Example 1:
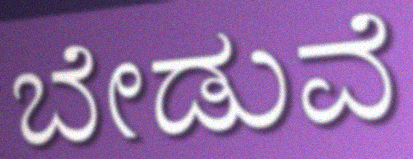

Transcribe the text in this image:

ಬೇಡುವೆ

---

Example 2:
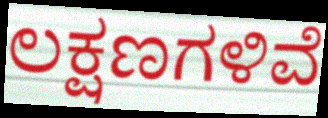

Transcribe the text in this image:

ಲಕ್ಷಣಗಳಿವೆ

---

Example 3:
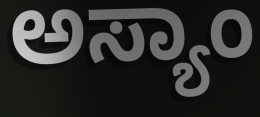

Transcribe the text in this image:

ಅಸ್ಯಾಂ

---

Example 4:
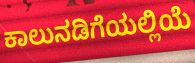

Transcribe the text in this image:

ಕಾಲುನಡಿಗೆಯಲ್ಲಿಯೆ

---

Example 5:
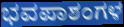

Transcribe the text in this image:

ಭವಪಾಶಂಗಳ